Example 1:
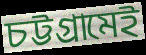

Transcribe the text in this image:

চট্টগ্রামেই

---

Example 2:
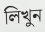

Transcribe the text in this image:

লিখুন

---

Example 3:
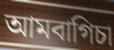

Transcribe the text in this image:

আমবাগিচা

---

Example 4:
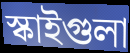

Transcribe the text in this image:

স্কাইগুলা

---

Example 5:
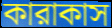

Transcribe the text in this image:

কারাকাস